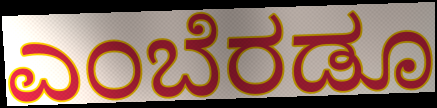
ಎಂಬೆರಡೂ